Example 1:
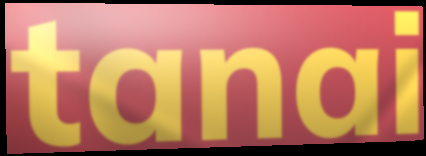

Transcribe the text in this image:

tanai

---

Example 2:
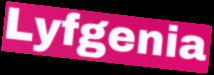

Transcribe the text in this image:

Lyfgenia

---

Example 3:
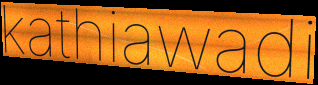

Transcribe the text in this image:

kathiawadi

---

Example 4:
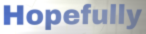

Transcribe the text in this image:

Hopefully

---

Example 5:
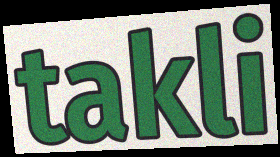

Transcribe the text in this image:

takli